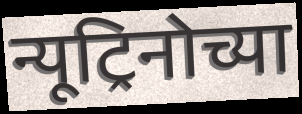
न्यूट्रिनोच्या